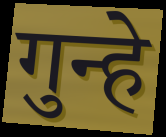
गुन्हे